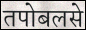
तपोबलसे